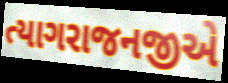
ત્યાગરાજનજીએ